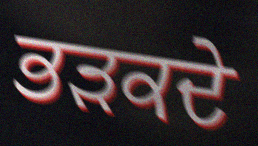
ਭੜਕਦੇ